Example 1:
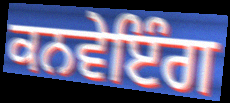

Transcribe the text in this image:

ਕਨਵੇਇੰਗ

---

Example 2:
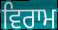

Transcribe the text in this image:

ਵਿਰਾਮ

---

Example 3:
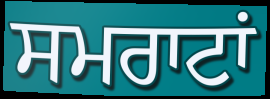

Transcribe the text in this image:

ਸਮਰਾਟਾਂ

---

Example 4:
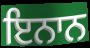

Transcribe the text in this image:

ਇਨਾਨ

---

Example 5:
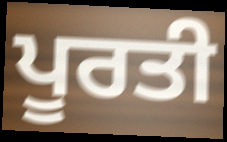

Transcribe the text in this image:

ਪੂਰਤੀ